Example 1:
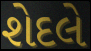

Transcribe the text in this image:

શેદલે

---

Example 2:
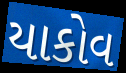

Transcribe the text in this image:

યાકોવ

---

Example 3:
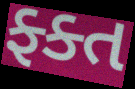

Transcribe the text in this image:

ફ્ક્ત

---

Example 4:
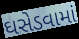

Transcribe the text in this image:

ઘસેડવામાં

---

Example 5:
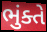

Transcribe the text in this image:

ભુંક્તે